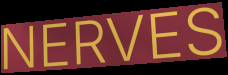
NERVES